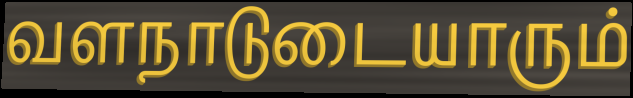
வளநாடுடையாரும்